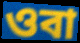
ওবা